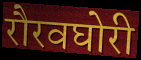
रौरवघोरी